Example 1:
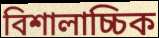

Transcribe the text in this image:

বিশালাচ্চিক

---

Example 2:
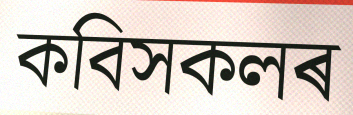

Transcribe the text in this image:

কবিসকলৰ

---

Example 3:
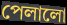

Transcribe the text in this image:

পেলালো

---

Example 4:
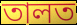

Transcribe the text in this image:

তালত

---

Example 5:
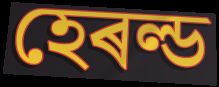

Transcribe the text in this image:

হেৰল্ড